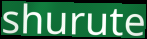
shurute